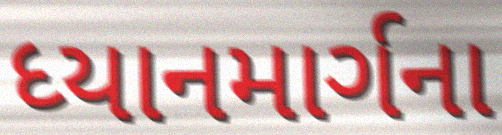
ધ્યાનમાર્ગના